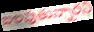
బలవుతున్నారని